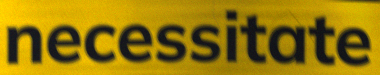
necessitate